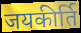
जयकीर्ति